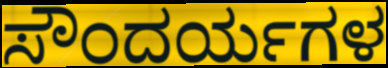
ಸೌಂದರ್ಯಗಳ